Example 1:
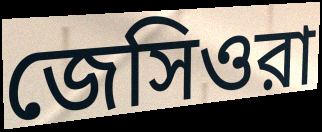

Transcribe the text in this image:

জেসিওরা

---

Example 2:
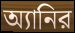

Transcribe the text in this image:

অ্যানির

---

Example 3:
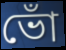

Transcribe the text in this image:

ভোঁ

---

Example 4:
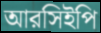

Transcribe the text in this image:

আরসিইপি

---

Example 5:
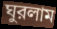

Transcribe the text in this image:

ঘুরলাম